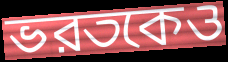
ভরতকেও